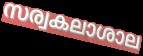
സര്വകലാശാല